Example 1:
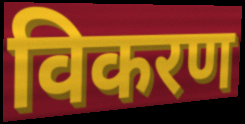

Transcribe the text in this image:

विकरण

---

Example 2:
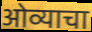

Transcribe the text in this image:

ओव्याचा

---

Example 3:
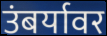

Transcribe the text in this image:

उंबर्यावर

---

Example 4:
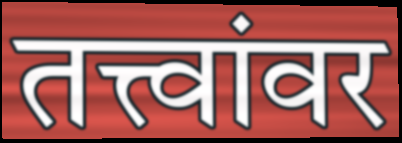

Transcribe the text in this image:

तत्त्वांवर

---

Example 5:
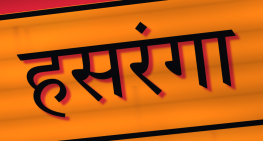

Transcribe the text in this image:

हसरंगा